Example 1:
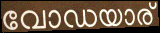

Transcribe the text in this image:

വോഡയാര്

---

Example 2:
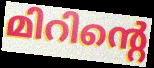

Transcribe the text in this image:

മിറിന്റെ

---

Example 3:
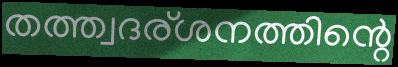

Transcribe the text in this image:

തത്ത്വദര്ശനത്തിന്റെ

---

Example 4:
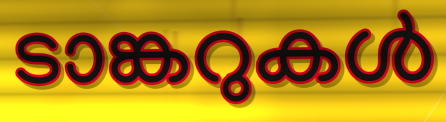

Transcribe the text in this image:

ടാങ്കറുകൾ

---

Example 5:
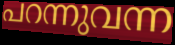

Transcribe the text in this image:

പറന്നുവന്ന